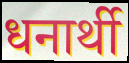
धनार्थी